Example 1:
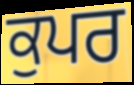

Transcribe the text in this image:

ਕੁਪਰ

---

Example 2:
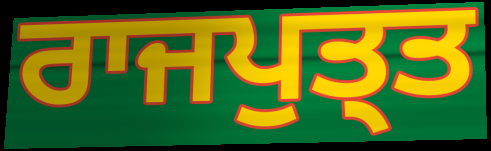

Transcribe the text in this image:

ਰਾਜਪੁਤ੍ਤ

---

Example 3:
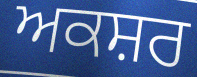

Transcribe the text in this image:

ਅਕਸ਼ਰ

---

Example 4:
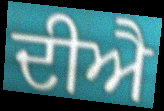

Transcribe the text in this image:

ਦੀਐ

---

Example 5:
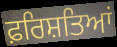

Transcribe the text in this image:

ਫ਼ਰਿਸ਼ਤਿਆਂ